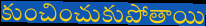
కుంచించుకుపోతాయి